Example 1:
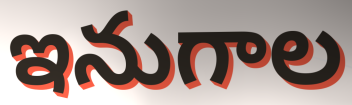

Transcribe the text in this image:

ఇనుగాల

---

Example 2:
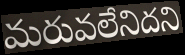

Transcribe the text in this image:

మరువలేనిదని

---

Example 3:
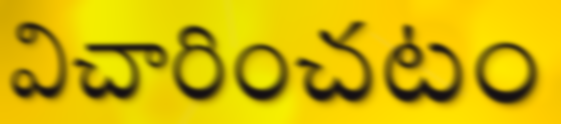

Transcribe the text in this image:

విచారించటం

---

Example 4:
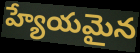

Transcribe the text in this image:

హ్యేయమైన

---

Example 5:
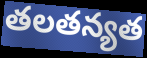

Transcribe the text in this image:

తలతన్యత